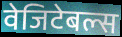
वेजिटेबल्स